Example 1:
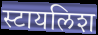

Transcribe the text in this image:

स्टायलिश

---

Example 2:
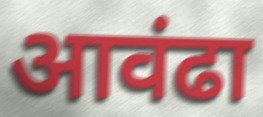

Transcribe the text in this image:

आवंढा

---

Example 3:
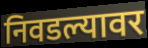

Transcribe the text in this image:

निवडल्यावर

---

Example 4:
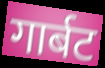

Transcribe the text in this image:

गार्बट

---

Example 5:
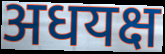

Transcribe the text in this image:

अधयक्ष